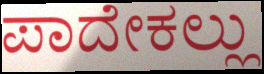
ಪಾದೇಕಲ್ಲು